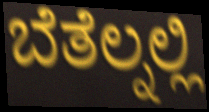
ಬೆತೆಲ್ನಲ್ಲಿ